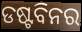
ଡଷ୍ଟବିନର